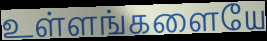
உள்ளங்களையே